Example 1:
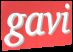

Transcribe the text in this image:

gavi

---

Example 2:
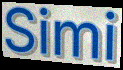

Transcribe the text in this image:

Simi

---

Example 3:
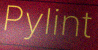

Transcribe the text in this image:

Pylint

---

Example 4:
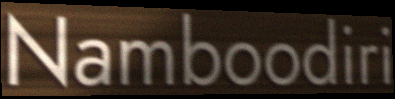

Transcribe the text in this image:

Namboodiri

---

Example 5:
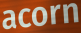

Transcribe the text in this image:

acorn